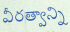
వీరత్వాన్ని